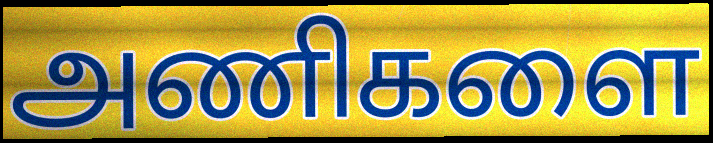
அணிகளை